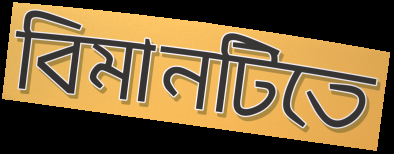
বিমানটিতে